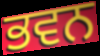
ਭਵਨ